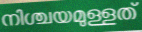
നിശ്ചയമുള്ളത്